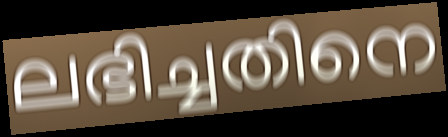
ലഭിച്ചതിനെ